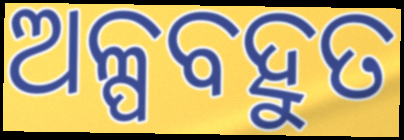
ଅଳ୍ପବହୁତ